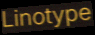
Linotype